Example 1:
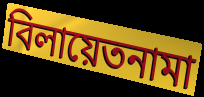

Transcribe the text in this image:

বিলায়েতনামা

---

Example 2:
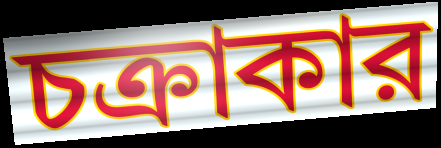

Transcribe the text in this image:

চক্রাকার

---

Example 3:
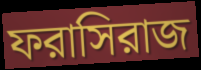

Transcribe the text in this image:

ফরাসিরাজ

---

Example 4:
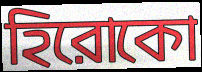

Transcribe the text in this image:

হিরোকো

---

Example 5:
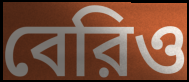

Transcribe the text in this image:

বেরিও